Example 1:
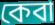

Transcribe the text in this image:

কেবা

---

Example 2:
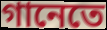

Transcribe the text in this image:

গানেতে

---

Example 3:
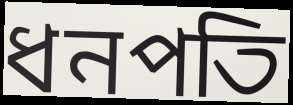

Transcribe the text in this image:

ধনপতি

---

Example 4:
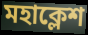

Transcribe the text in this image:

মহাক্লেশ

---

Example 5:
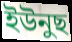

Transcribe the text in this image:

ইউনুছ